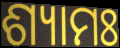
ଶ୍ୟାମଃ